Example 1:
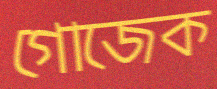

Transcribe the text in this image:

গোজেক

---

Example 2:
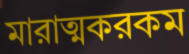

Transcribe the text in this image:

মারাত্মকরকম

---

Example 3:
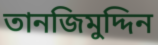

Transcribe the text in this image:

তানজিমুদ্দিন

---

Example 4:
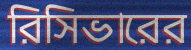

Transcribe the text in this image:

রিসিভারের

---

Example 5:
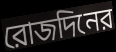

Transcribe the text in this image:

রোজদিনের